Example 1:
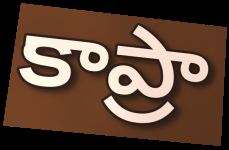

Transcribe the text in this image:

కాప్రా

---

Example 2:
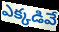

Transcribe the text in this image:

ఎక్కడివే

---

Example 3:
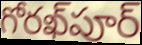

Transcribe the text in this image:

గోరఖ్‌పూర్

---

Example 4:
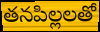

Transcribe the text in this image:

తనపిల్లలతో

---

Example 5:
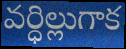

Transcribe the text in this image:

వర్ధిల్లుగాక